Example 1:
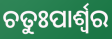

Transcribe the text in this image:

ଚତୁଃପାର୍ଶ୍ଵର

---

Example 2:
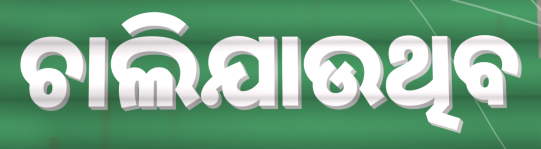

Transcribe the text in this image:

ଚାଲିଯାଉଥିବ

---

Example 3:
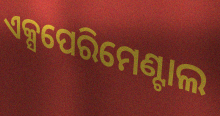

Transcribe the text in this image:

ଏକ୍ସପେରିମେଣ୍ଟାଲ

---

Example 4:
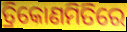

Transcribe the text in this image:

ତ୍ରିକୋଣମିତିରେ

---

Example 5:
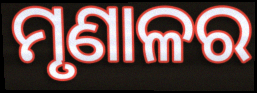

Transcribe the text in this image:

ମୃଣାଳର